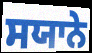
ਸਯਾਨੇ